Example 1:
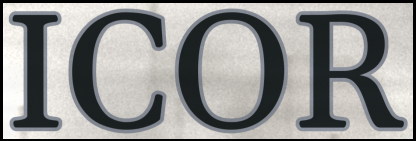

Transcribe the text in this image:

ICOR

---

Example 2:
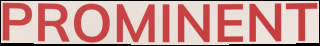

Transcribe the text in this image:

PROMINENT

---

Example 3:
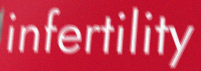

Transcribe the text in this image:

infertility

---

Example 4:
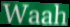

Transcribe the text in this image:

Waah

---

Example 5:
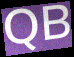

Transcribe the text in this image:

QB